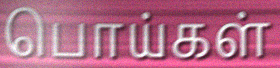
பொய்கள்